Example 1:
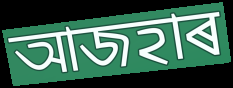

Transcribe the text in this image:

আজহাৰ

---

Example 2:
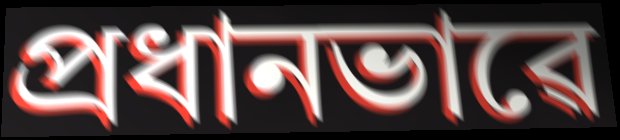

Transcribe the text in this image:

প্ৰধানভাৱে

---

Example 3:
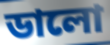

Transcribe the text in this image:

ডালো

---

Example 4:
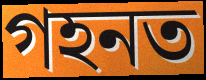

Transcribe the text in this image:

গহনত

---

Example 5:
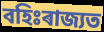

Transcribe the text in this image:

বহিঃৰাজ্যত